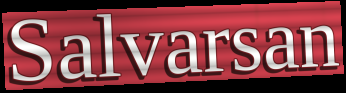
Salvarsan